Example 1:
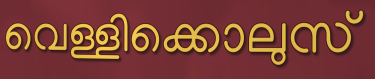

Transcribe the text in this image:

വെള്ളിക്കൊലുസ്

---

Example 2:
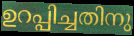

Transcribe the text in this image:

ഉറപ്പിച്ചതിനു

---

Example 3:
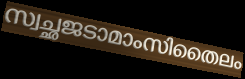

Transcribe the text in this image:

സ്വച്ഛജടാമാംസിതൈലം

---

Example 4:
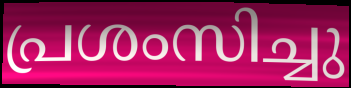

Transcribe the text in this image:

പ്രശംസിച്ചു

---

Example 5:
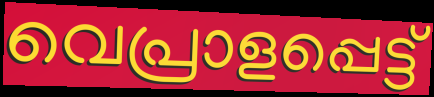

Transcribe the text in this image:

വെപ്രാളപ്പെട്ട്